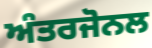
ਅੰਤਰਜੋਨਲ